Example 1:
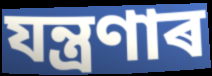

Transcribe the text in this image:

যন্ত্ৰণাৰ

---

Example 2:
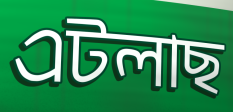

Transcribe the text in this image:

এটলাছ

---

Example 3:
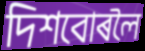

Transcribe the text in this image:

দিশবোৰলৈ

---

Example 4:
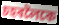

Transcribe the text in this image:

চহৰলৈকে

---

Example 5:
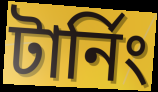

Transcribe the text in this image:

টাৰ্নিং